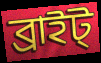
ব্রাইট্